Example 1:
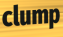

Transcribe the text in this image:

clump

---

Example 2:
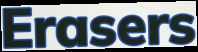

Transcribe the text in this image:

Erasers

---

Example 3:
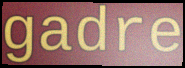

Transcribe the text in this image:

gadre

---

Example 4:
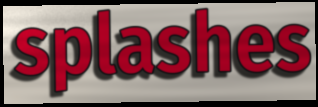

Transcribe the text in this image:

splashes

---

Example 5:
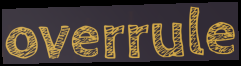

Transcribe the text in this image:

overrule